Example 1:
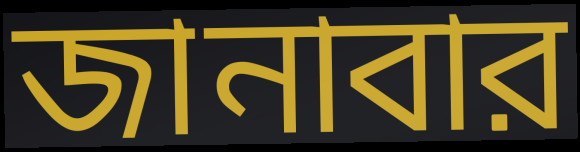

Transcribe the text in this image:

জানাবার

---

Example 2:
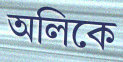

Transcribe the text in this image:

অলিকে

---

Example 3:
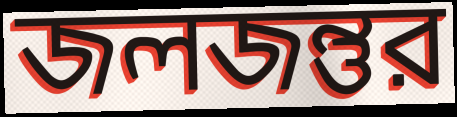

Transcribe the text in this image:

জলজন্তুর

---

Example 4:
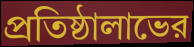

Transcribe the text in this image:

প্রতিষ্ঠালাভের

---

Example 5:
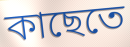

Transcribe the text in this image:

কাছেতে